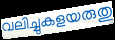
വലിച്ചുകളയരുതു